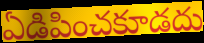
ఏడిపించకూడదు